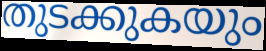
തുടക്കുകയും